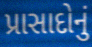
પ્રાસાદોનું